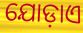
ଯୋଡ଼ାଏ